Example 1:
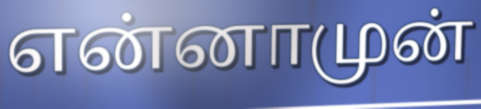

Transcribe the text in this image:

என்னாமுன்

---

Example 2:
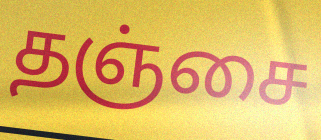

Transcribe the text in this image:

தஞ்சை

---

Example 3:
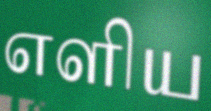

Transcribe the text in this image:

எளிய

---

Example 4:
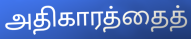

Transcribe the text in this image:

அதிகாரத்தைத்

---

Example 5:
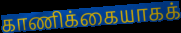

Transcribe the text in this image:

காணிக்கையாகக்